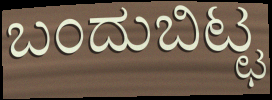
ಬಂದುಬಿಟ್ಟ